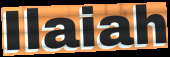
Ilaiah